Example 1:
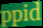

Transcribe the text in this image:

ppid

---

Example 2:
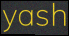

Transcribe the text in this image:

yash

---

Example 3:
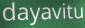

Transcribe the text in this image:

dayavitu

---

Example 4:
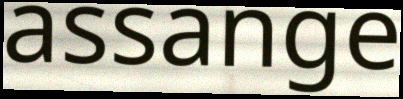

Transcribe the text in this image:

assange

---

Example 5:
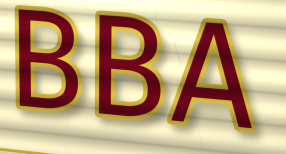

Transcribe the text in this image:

BBA